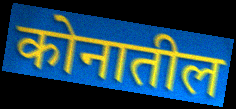
कोनातील